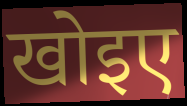
खोइए